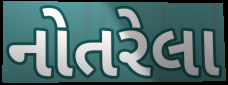
નોતરેલા